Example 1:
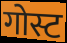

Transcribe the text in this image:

गोस्ट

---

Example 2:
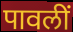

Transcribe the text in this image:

पावलीं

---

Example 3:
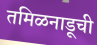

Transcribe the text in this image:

तमिळनाडूची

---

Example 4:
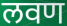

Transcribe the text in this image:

लवण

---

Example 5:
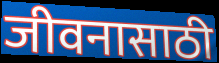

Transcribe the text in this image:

जीवनासाठी